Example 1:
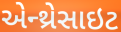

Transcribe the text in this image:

એન્થ્રેસાઇટ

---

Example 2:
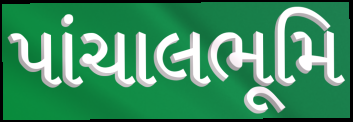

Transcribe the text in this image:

પાંચાલભૂમિ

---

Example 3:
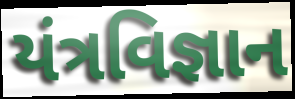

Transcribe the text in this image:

યંત્રવિજ્ઞાન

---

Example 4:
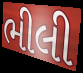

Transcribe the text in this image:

ભીલી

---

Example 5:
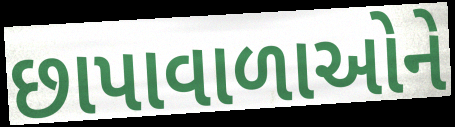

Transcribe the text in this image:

છાપાવાળાઓને